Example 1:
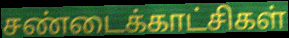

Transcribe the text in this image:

சண்டைக்காட்சிகள்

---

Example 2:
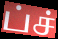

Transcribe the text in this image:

ப்ச்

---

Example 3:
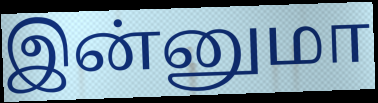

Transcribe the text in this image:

இன்னுமா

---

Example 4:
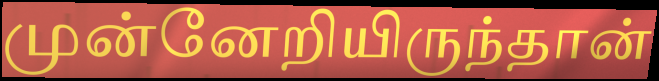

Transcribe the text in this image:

முன்னேறியிருந்தான்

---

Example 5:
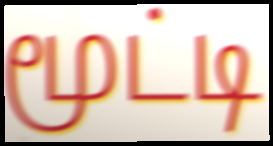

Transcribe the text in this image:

மூட்டி